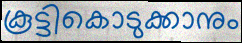
കൂട്ടികൊടുക്കാനും